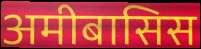
अमीबासिस